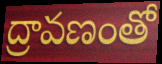
ద్రావణంతో